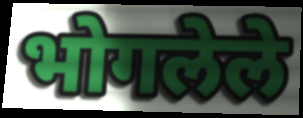
भोगलेले